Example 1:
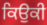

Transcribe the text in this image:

ਕਿਉਕੀ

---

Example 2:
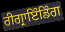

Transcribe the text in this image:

ਰੀਗ੍ਰਾਇੰਡਿੰਗ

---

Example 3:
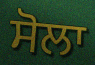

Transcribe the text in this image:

ਸੋਲਾ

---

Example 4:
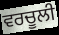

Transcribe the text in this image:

ਵਰਚੂਲੀ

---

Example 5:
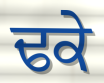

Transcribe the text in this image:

ਢਕੇ